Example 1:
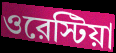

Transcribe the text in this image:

ওরেস্টিয়া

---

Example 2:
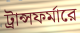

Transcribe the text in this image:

ট্রান্সফর্মারে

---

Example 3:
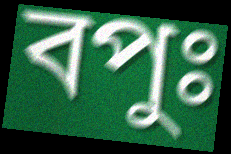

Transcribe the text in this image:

বপুঃ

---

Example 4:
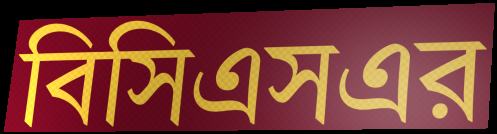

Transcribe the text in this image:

বিসিএসএর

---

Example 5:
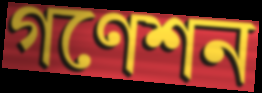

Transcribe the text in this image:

গণেশন